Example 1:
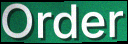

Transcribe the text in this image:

Order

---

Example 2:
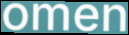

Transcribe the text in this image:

omen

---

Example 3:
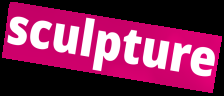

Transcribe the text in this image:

sculpture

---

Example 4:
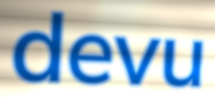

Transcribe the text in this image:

devu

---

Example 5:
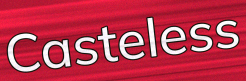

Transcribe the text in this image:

Casteless